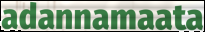
adannamaata